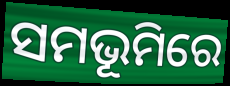
ସମଭୂମିରେ